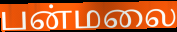
பன்மலை